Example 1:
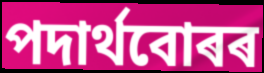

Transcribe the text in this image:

পদাৰ্থবোৰৰ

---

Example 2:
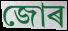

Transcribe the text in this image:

জোৰ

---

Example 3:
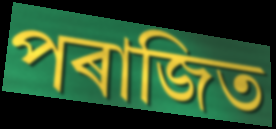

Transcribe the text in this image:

পৰাজিত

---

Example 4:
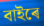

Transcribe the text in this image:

বাইৰে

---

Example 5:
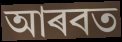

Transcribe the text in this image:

আৰবত